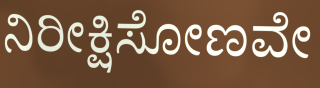
ನಿರೀಕ್ಷಿಸೋಣವೇ